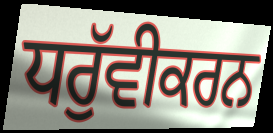
ਧਰੁੱਵੀਕਰਨ